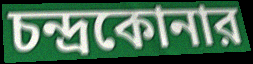
চন্দ্রকোনার